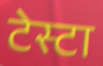
टेस्टा